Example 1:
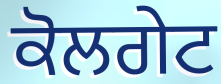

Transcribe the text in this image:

ਕੋਲਗੇਟ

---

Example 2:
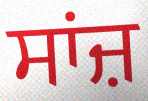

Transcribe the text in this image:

ਸਾਂਜ਼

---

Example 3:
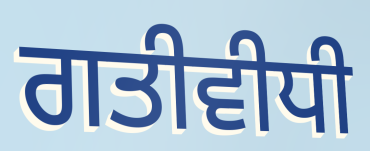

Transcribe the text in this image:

ਗਤੀਵੀਧੀ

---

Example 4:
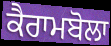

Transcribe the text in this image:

ਕੈਰਾਮਬੋਲਾ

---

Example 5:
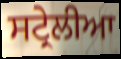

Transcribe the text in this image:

ਸਟ੍ਰੇਲੀਆ